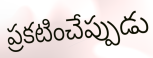
ప్రకటించేప్పుడు